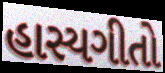
હાસ્યગીતો